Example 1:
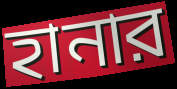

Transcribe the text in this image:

হানার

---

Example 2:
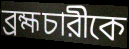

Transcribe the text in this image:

ব্রহ্মচারীকে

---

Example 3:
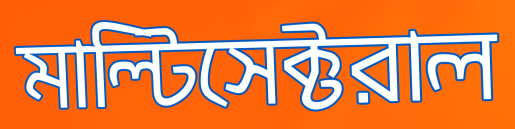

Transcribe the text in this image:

মাল্টিসেক্টরাল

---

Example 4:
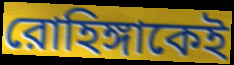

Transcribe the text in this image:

রোহিঙ্গাকেই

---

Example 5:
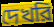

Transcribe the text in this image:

দেখরি